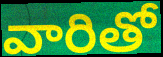
వారితో